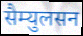
सैम्युलसन